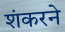
शंकरने